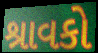
શ્રાવકો